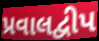
પ્રવાલદ્વીપ